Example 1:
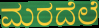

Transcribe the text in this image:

ಮರದೆಲೆ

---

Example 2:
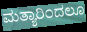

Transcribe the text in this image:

ಮತ್ಯಾರಿಂದಲೂ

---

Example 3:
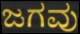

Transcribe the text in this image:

ಜಗವು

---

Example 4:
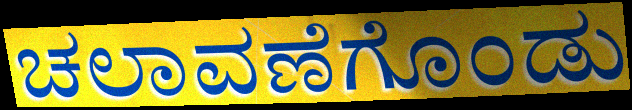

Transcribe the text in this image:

ಚಲಾವಣೆಗೊಂಡು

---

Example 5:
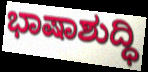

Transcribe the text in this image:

ಭಾಷಾಶುದ್ಧಿ